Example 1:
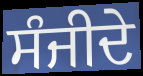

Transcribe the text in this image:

ਸੰਜੀਦੇ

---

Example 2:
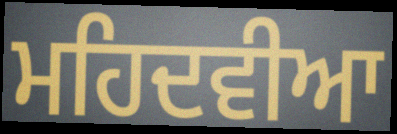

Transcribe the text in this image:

ਮਹਿਦਵੀਆ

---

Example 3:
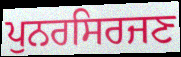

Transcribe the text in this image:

ਪੁਨਰਸਿਰਜਣ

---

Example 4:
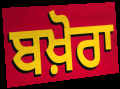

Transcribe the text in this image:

ਬਖ਼ੋਰਾ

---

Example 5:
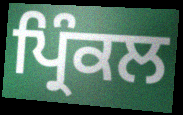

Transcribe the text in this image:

ਪ੍ਰਿੰਕਲ